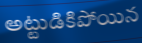
అట్టుడికిపోయిన